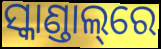
ସ୍କାଣ୍ଡାଲ୍‌ରେ